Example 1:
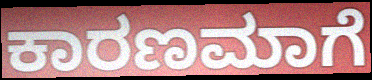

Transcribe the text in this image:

ಕಾರಣಮಾಗೆ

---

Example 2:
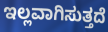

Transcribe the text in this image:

ಇಲ್ಲವಾಗಿಸುತ್ತದೆ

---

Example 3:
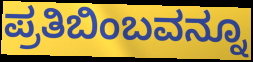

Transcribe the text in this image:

ಪ್ರತಿಬಿಂಬವನ್ನೂ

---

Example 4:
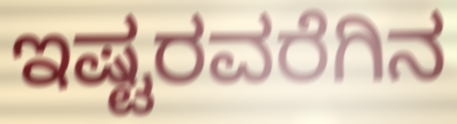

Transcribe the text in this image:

ಇಷ್ಟರವರೆಗಿನ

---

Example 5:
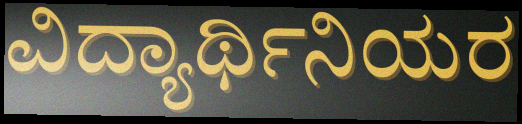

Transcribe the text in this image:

ವಿದ್ಯಾರ್ಥಿನಿಯರ